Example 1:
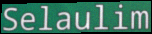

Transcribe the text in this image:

Selaulim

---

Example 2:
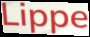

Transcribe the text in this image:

Lippe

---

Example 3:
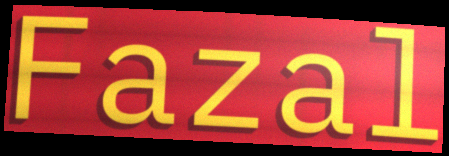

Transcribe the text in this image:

Fazal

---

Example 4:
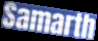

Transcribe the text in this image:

Samarth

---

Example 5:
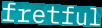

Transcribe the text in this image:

fretful